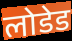
लोडेड